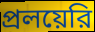
প্রলয়েরি